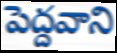
పెద్దవాని